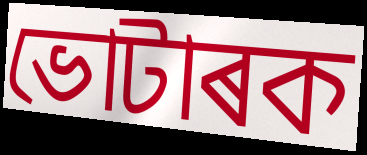
ভোটাৰক